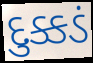
દુક્કડં